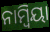
ନାମ୍ୱିୟା